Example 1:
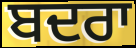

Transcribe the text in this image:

ਬਦਰਾ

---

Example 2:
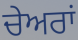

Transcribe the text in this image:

ਚੇਅਰਾਂ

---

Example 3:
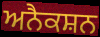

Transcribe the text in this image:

ਅਨੈਕਸ਼ਨ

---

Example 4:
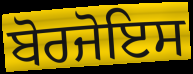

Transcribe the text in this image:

ਬੋਰਜੋਇਸ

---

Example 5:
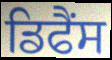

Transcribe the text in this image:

ਡਿਫੈਂਸ